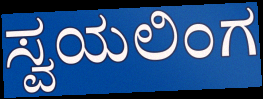
ಸ್ವಯಲಿಂಗ